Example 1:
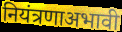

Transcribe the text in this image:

नियंत्रणाअभावी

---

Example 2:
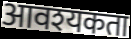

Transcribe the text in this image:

आवश्‍यकता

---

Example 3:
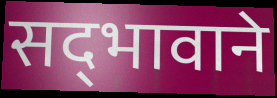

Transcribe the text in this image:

सद्भावाने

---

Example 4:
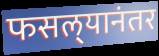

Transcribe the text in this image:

फसल्यानंतर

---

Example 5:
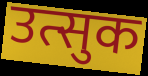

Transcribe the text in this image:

उत्सुक